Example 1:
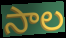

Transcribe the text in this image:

సాల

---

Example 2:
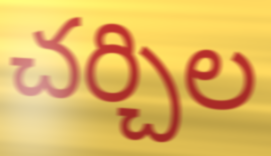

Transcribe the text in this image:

చర్చిల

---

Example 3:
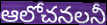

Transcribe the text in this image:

ఆలోచనలనీ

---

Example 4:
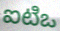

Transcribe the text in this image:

ఐటిఒ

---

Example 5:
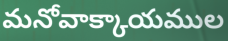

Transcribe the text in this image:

మనోవాక్కాయముల